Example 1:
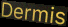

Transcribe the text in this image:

Dermis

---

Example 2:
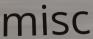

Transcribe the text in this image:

misc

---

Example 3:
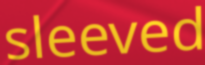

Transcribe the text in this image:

sleeved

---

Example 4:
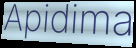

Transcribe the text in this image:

Apidima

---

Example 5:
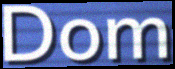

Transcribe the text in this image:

Dom